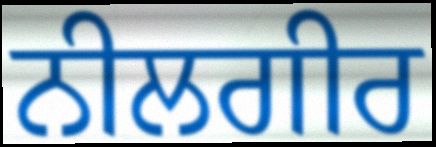
ਨੀਲਗੀਰ